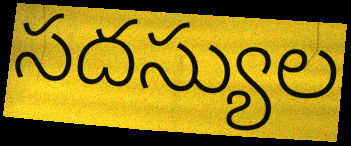
సదస్యుల